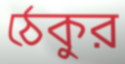
ঠেকুর